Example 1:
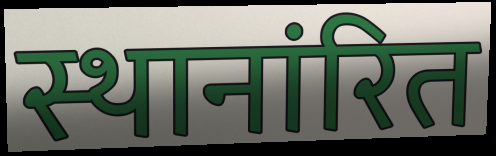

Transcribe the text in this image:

स्थानांरित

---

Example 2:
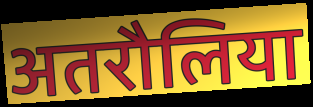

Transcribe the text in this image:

अतरौलिया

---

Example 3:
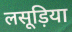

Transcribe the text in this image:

लसूड़िया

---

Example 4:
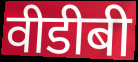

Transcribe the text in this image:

वीडीबी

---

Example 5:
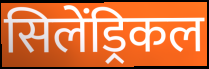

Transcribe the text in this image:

सिलेंड्रिकल